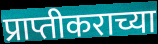
प्राप्तीकराच्या